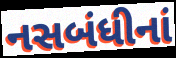
નસબંધીનાં